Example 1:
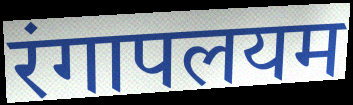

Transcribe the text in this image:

रंगापलयम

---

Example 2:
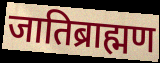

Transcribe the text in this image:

जातिब्राह्मण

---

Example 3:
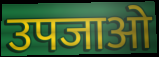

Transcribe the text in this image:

उपजाओ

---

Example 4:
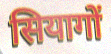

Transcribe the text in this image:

सियागों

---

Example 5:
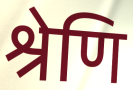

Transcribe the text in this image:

श्रेणि